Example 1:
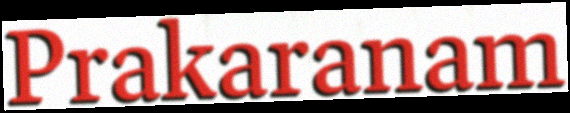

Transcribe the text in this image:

Prakaranam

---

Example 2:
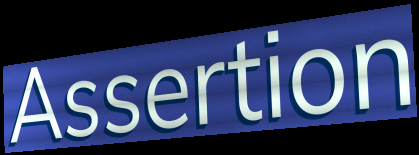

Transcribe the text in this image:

Assertion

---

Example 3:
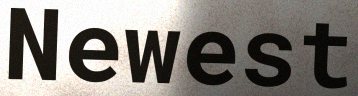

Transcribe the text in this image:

Newest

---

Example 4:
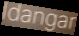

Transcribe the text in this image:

Idangar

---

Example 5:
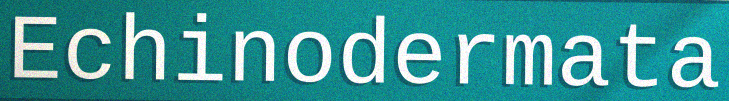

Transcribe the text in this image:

Echinodermata